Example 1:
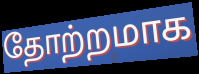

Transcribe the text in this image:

தோற்றமாக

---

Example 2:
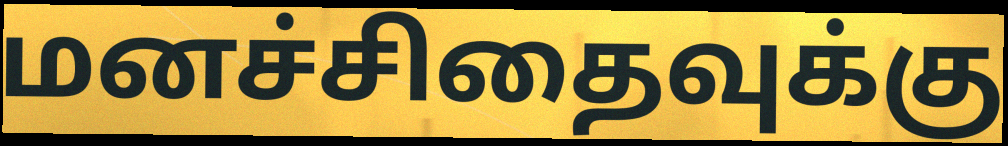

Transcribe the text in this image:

மனச்சிதைவுக்கு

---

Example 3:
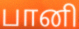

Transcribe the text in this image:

பானி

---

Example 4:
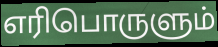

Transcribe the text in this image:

எரிபொருளும்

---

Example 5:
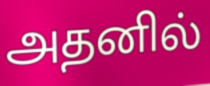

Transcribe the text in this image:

அதனில்